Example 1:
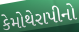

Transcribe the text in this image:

કેમોથેરાપીનો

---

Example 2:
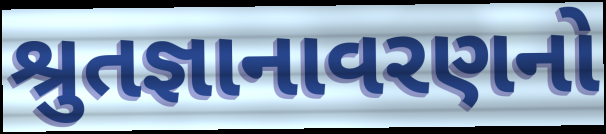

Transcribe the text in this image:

શ્રુતજ્ઞાનાવરણનો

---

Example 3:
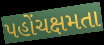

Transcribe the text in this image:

પહોંચક્ષમતા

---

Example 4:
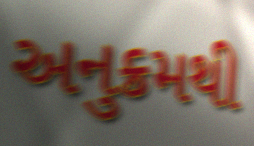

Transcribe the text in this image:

અનુક્રમથી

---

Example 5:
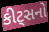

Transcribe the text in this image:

કીટ્સનો